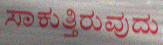
ಸಾಕುತ್ತಿರುವುದು